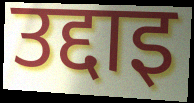
उद्दाइ